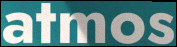
atmos